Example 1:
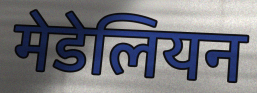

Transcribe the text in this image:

मेडेलियन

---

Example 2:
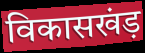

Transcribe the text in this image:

विकासखंड़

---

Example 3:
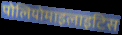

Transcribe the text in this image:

पोलियोमाइलाइटिस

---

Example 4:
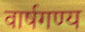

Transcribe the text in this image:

वार्षगण्य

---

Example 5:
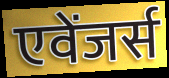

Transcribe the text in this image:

एवेंजर्स